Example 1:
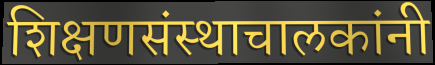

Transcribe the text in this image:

शिक्षणसंस्थाचालकांनी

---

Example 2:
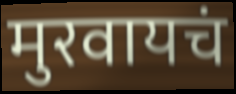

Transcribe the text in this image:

मुरवायचं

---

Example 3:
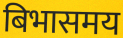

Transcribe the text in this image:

बिभासमय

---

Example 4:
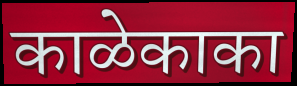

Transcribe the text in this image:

काळेकाका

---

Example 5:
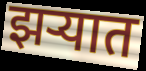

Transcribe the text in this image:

झर्‍यात